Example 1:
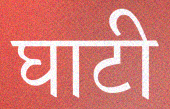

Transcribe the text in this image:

घाटी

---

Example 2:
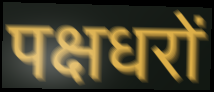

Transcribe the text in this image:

पक्षधरों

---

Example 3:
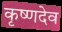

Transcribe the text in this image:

कृष्णदेव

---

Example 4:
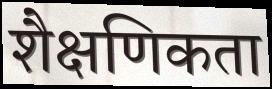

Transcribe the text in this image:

शैक्षणिकता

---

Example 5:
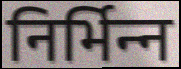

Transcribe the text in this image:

निर्भिन्न